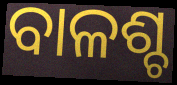
ବାଳଶ୍ଚ